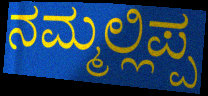
ನಮ್ಮಲ್ಲಿಪ್ಪ